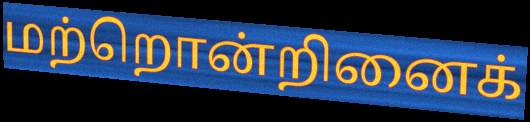
மற்றொன்றினைக்